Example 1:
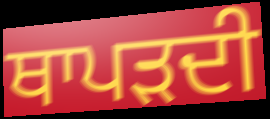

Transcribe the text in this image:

ਥਾਪੜਦੀ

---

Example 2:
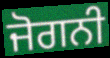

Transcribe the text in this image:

ਜੋਗਨੀ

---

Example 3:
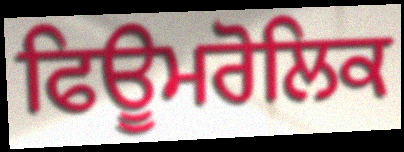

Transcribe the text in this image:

ਫਿਊਮਰੋਲਿਕ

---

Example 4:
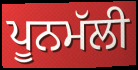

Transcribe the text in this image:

ਪੂਨਮੱਲੀ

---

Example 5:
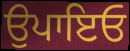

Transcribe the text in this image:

ਉਪਾਇਓ